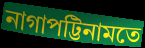
নাগাপট্টিনামতে